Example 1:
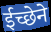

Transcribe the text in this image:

ईच्छेने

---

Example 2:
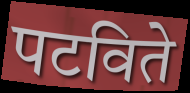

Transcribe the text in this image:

पटविते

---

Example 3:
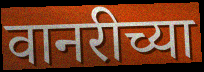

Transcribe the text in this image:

वानरीच्या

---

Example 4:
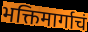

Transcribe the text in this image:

भक्तिमार्गाचं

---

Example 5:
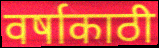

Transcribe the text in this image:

वर्षाकाठी